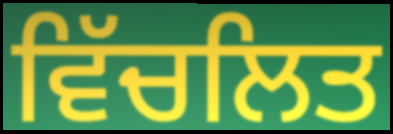
ਵਿੱਚਲਿਤ